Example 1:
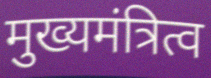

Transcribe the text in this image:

मुख्यमंत्रित्व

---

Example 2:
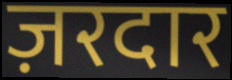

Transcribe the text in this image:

ज़रदार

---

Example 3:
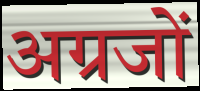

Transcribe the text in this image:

अग्रजों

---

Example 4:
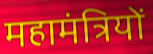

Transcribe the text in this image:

महामंत्रियों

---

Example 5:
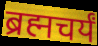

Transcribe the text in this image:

ब्रह्मचर्यं